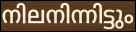
നിലനിന്നിട്ടും